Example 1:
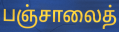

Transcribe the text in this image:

பஞ்சாலைத்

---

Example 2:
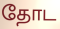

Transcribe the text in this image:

தோட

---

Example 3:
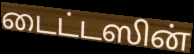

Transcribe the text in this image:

டைட்டஸின்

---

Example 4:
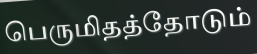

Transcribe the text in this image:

பெருமிதத்தோடும்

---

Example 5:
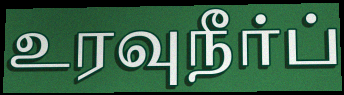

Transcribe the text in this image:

உரவுநீர்ப்